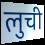
लुची